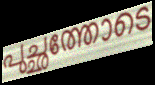
പുച്ഛത്തോടെ